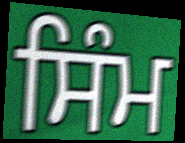
ਸਿੰਮ